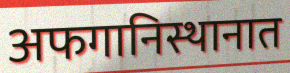
अफगानिस्थानात